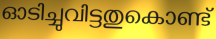
ഓടിച്ചുവിട്ടതുകൊണ്ട്